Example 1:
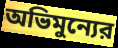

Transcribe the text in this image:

অভিমুন্যের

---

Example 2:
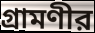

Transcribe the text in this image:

গ্রামণীর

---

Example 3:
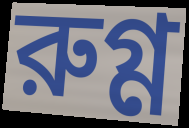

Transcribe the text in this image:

রুগ্ণ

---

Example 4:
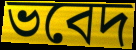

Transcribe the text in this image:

ভবেদ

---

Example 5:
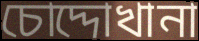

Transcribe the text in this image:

চোদ্দোখানা